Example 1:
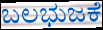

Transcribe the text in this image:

ಬಲಭುಜಕೆ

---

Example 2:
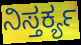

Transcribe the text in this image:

ನಿಸ್ತರ್ಕ್ಯ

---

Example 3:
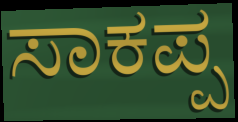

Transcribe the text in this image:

ಸಾಕಪ್ಪ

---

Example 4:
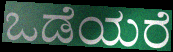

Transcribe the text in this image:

ಒಡೆಯರೆ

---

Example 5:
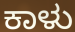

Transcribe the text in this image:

ಕಾಳು